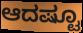
ಆದಷ್ಟೂ